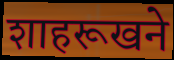
शाहरूखने